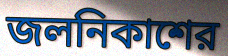
জলনিকাশের